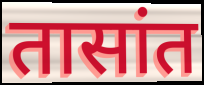
तासांत